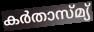
കർതാസ്മ്യ്